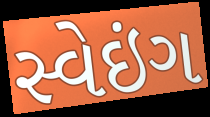
સ્વેઇંગ